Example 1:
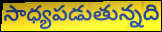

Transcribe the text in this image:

సాధ్యపడుతున్నది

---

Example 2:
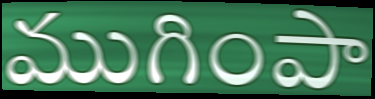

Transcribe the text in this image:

ముగింపా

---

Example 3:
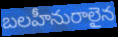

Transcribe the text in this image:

బలహీనురాలైన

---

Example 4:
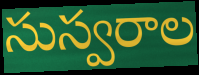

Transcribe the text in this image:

సుస్వరాల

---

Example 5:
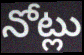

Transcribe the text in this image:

నోట్లు